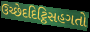
ઉચ્છેદદિટ્ઠિસહગતો